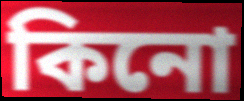
কিনো